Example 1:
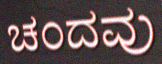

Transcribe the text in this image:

ಚಂದವು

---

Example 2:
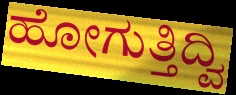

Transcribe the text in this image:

ಹೋಗುತ್ತಿದ್ವಿ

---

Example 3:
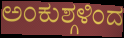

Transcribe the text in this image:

ಅಂಕುಶ್ಗಳಿಂದ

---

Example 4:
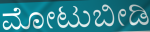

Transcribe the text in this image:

ಮೋಟುಬೀಡಿ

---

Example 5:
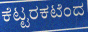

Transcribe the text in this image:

ಕೆಟ್ಟರಕಟೆಂದ